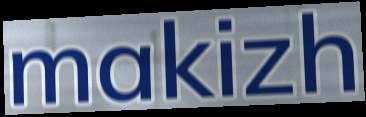
makizh